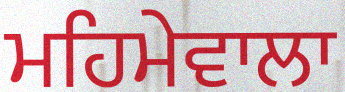
ਮਹਿਮੇਵਾਲਾ